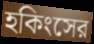
হকিংসের